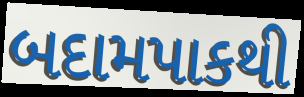
બદામપાકથી